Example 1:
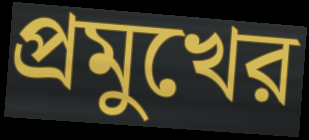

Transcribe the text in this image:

প্রমুখের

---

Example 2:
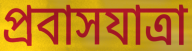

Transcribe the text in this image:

প্রবাসযাত্রা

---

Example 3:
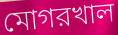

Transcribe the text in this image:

মোগরখাল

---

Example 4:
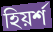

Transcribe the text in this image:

হিয়র্শ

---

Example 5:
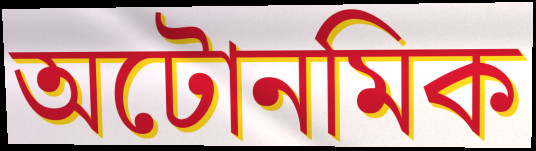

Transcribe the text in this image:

অটোনমিক